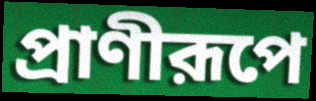
প্রাণীরূপে